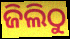
ଜିଲିଠୁ